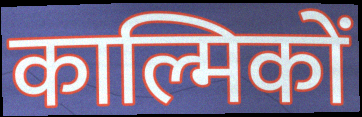
काल्मिकों